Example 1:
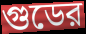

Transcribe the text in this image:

গুডের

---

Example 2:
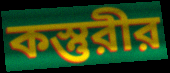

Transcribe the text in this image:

কস্তুরীর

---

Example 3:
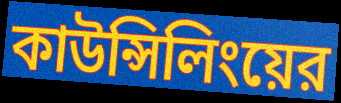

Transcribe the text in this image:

কাউন্সিলিংয়ের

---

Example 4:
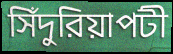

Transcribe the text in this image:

সিঁদুরিয়াপটী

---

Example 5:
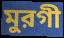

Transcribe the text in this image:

মুরগী